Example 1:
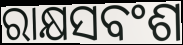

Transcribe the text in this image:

ରାକ୍ଷସବଂଶ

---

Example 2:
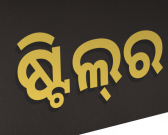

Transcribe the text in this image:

ଷ୍ଟିଲ୍‌ର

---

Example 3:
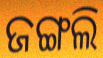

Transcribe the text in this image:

ଜଙ୍ଗଲି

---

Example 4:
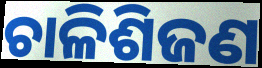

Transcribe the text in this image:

ଚାଳିଶିଜଣ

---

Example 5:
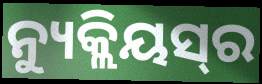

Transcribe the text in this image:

ନ୍ୟୁକ୍ଲିୟସ୍‌ର